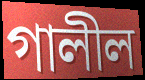
গালীল